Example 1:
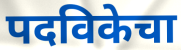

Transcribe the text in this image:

पदविकेचा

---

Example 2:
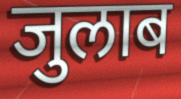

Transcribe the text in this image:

जुलाब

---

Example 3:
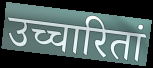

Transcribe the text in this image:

उच्चारितां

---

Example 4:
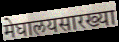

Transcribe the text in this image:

मेघालयसारख्या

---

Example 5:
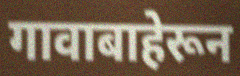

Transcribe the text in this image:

गावाबाहेरून